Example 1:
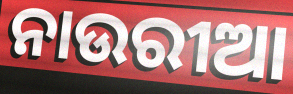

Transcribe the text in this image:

ନାଉରୀଆ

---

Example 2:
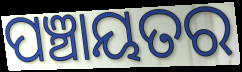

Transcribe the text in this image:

ପଞ୍ଚାୟତର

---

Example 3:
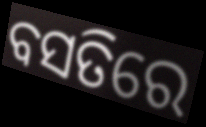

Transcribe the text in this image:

ବସତିରେ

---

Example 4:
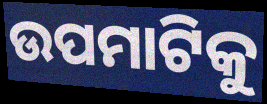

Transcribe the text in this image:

ଉପମାଟିକୁ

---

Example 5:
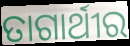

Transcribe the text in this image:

ତାଗାର୍ଥୀର